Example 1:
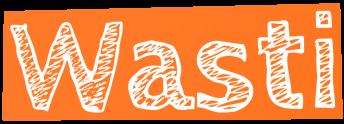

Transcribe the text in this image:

Wasti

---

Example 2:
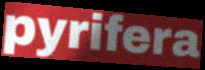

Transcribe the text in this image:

pyrifera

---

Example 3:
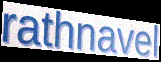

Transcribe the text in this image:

rathnavel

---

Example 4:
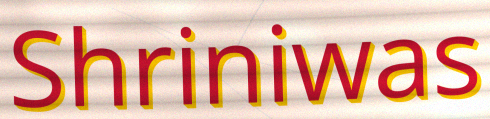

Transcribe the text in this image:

Shriniwas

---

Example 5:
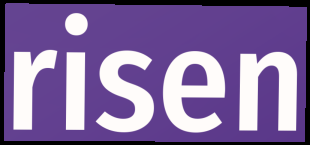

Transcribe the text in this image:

risen